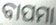
ବାପମା